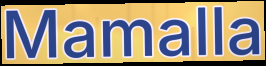
Mamalla